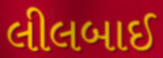
લીલબાઈ